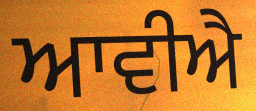
ਆਵੀਐ